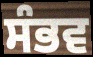
ਸੰਭਵ